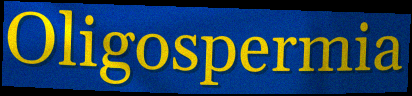
Oligospermia